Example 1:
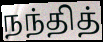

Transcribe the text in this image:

நந்தித்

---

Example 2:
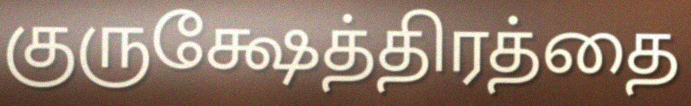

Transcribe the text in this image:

குருக்ஷேத்திரத்தை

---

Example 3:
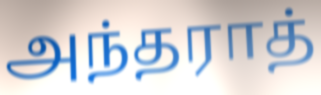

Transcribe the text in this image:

அந்தராத்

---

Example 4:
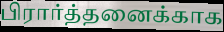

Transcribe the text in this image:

பிரார்த்தனைக்காக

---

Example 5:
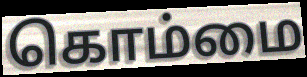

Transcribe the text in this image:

கொம்மை